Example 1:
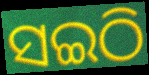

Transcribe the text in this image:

ସଇଠି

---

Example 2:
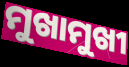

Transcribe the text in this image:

ମୁଖାମୁଖୀ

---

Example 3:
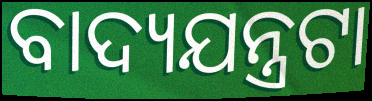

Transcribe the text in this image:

ବାଦ୍ୟଯନ୍ତ୍ରଟା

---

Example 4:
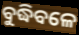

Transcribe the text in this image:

ବୁଦ୍ଧିବଳେ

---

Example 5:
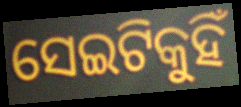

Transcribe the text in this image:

ସେଇଟିକୁହିଁ